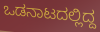
ಒಡನಾಟದಲ್ಲಿದ್ದ